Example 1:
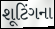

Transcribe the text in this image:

શૂટિંગના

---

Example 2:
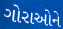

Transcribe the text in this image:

ગોરાઓને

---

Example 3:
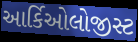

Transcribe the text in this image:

આર્કિઓલોજીસ્ટ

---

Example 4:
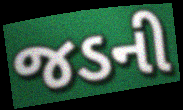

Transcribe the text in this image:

જડની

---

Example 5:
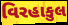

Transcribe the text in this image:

વિરહાકુલ